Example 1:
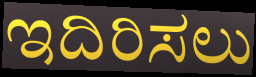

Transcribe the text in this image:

ಇದಿರಿಸಲು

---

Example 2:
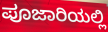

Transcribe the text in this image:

ಪೂಜಾರಿಯಲ್ಲಿ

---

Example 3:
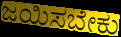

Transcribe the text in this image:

ಜಯಿಸಬೇಕು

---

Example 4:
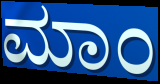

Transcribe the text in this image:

ಮಾಂ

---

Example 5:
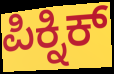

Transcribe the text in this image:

ಪಿಕ್ನಿಕ್